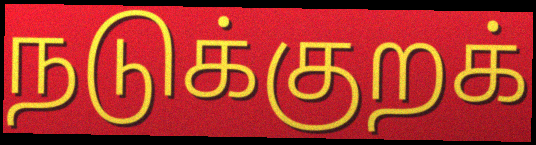
நடுக்குறக்